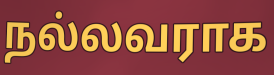
நல்லவராக